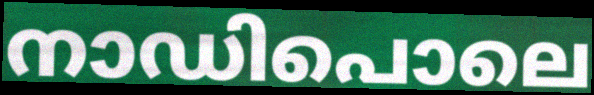
നാഡിപൊലെ